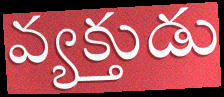
వ్యక్తుడు